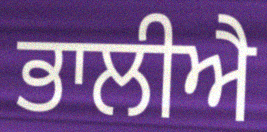
ਭਾਲੀਐ